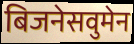
बिजनेसवुमेन